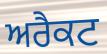
ਅਰੈਕਟ